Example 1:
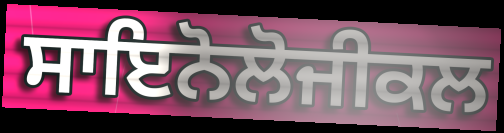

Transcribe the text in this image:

ਸਾਇਨੋਲੋਜੀਕਲ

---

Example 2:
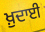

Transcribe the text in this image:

ਖ਼ੁਦਾਈ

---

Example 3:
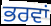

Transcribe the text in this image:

ਭਰਵਾਂ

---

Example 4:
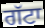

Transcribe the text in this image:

ਗੱਟਾ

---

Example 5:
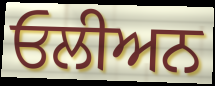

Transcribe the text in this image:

ਓਲੀਅਨ